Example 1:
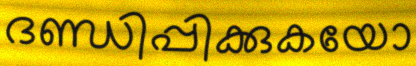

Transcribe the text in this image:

ദണ്ഡിപ്പിക്കുകയോ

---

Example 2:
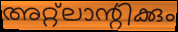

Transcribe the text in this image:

അറ്റ്ലാന്റിക്കും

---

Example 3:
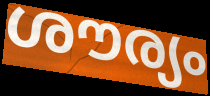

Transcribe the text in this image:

ശൗര്യം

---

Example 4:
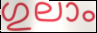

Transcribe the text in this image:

ഗുലാം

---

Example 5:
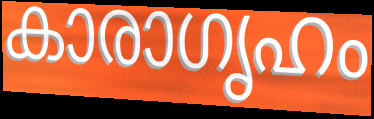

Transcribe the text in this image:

കാരാഗൃഹം